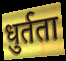
धुर्तता